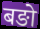
बङो